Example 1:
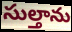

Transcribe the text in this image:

సుల్తాను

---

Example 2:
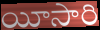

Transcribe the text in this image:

యీసారి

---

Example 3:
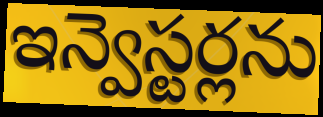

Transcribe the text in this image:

ఇన్వెస్టర్లను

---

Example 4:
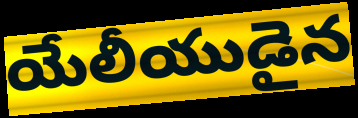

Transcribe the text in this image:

యేలీయుడైన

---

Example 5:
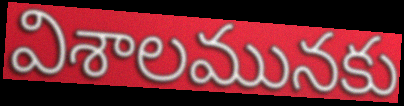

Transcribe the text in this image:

విశాలమునకు